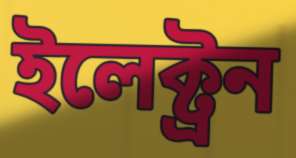
ইলেক্ট্ৰন